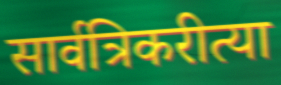
सार्वत्रिकरीत्या